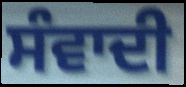
ਸੰਵਾਦੀ